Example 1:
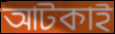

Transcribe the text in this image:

আটকাই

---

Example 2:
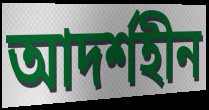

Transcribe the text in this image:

আদৰ্শহীন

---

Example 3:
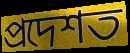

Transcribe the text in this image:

প্ৰদেশত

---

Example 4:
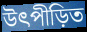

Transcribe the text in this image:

উৎপীড়িত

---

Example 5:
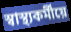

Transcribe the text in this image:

স্বাস্থ্যকৰ্মীয়ে